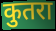
कुतरा